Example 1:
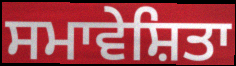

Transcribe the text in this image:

ਸਮਾਵੇਸ਼ਿਤਾ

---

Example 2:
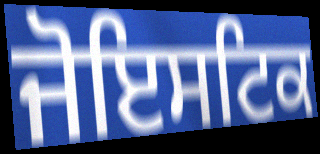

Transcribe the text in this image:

ਜੋਇਸਟਿਕ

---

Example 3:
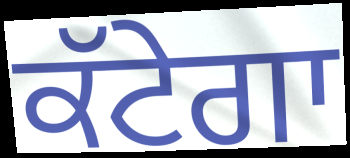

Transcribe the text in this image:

ਕੱਟੇਗਾ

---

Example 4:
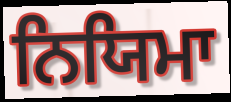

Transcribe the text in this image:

ਨਿਯਿਮਾ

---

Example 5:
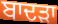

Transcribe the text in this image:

ਬਾਦੜਾ